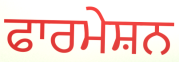
ਫਾਰਮੇਸ਼ਨ